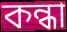
কন্ধা